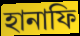
হানাফি